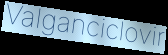
Valganciclovir